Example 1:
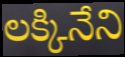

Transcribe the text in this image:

లక్కినేని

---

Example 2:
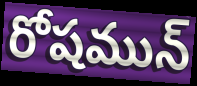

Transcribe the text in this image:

రోషమున్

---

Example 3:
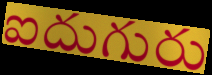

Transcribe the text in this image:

ఐదుగురు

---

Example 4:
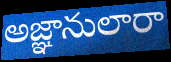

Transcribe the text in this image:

అజ్ఞానులారా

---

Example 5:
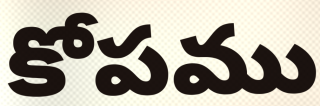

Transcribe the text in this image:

కోపము